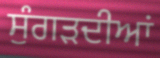
ਸੁੰਗੜਦੀਆਂ